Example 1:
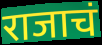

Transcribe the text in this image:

राजाचं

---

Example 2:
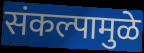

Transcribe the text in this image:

संकल्पामुळे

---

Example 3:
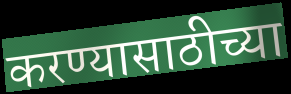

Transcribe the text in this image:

करण्यासाठीच्या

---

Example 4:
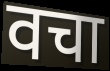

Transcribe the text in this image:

वचा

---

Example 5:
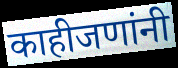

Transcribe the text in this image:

काहीजणांनी